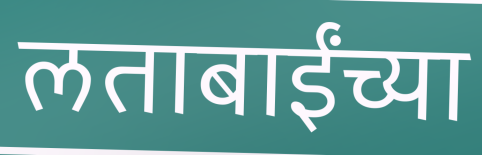
लताबाईंच्या